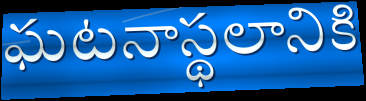
ఘటనాస్థలానికి